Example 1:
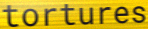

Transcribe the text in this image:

tortures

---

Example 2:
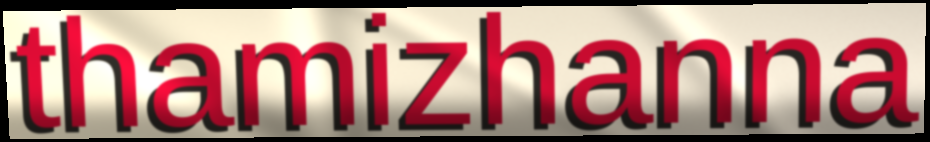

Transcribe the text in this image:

thamizhanna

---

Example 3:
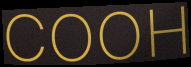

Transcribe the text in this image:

COOH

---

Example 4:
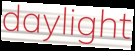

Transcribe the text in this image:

daylight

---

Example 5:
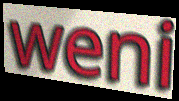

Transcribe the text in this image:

weni